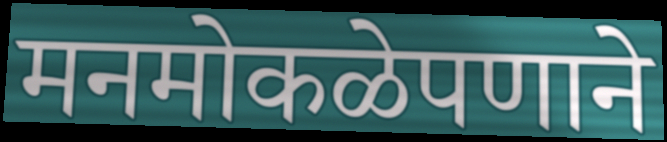
मनमोकळेपणाने